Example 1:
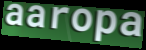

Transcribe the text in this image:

aaropa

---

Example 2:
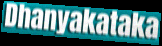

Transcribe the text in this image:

Dhanyakataka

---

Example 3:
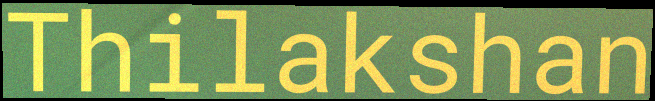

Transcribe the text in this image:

Thilakshan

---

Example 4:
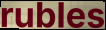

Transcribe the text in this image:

rubles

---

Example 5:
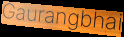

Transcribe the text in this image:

Gaurangbhai